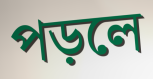
পড়লে